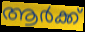
ആർക്ക്